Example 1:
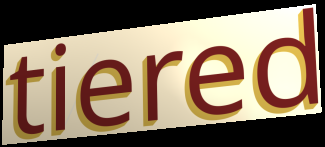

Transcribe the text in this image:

tiered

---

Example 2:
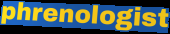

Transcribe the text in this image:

phrenologist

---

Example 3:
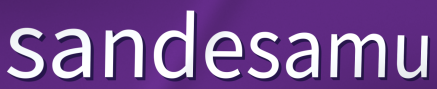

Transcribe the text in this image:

sandesamu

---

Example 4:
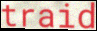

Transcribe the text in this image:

traid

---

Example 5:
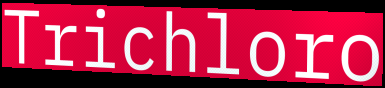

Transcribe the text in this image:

Trichloro